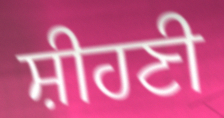
ਸ਼ੀਹਣੀ